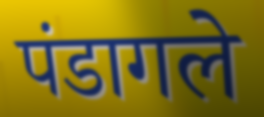
पंडागले